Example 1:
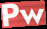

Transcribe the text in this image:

Pw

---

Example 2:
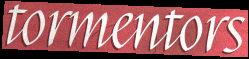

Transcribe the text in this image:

tormentors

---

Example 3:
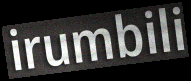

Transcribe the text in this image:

irumbili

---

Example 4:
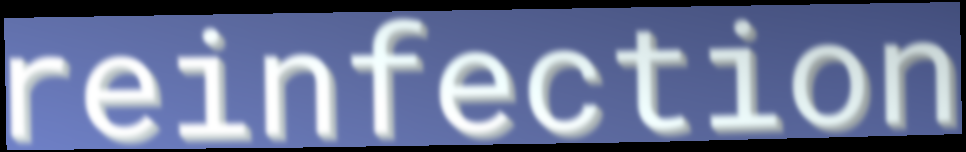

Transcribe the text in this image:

reinfection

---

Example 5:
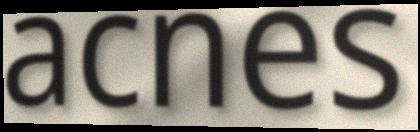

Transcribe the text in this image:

acnes